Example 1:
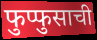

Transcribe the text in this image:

फुप्फुसाची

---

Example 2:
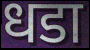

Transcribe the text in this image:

धडा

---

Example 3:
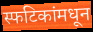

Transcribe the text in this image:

स्फटिकांमधून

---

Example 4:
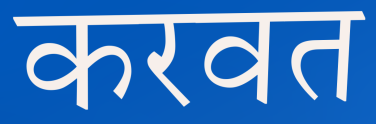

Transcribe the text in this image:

करवत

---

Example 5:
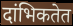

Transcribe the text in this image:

दांभिकतेत